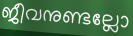
ജീവനുണ്ടല്ലോ